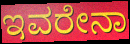
ಇವರೇನಾ